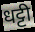
धट्टी